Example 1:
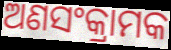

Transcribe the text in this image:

ଅଣସଂକ୍ରାମକ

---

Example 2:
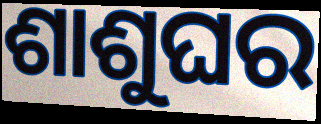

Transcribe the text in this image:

ଶାଶୁଘର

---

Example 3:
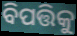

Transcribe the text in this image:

ବିପତ୍ତିକୁ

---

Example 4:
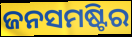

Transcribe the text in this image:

ଜନସମଷ୍ଟିର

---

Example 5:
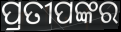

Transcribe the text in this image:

ପ୍ରତୀପଙ୍କର